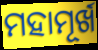
ମହାମୂର୍ଖ